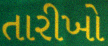
તારીખો